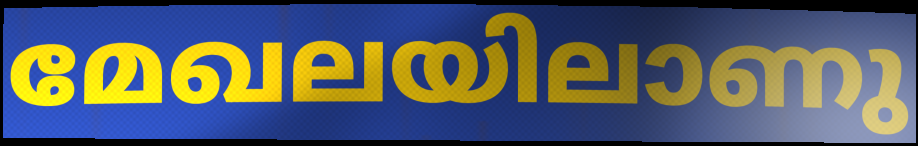
മേഖലയിലാണു